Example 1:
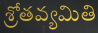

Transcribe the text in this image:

శ్రోతవ్యమితి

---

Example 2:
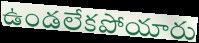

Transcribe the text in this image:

ఉండలేకపోయారు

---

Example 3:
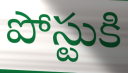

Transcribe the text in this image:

పోస్టుకి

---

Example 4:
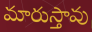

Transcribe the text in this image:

మారుస్తావు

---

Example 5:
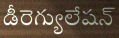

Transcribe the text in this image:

డీరెగ్యులేషన్